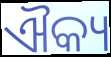
ଐକ୍ୟ